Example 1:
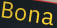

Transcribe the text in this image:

Bona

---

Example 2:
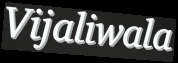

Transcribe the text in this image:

Vijaliwala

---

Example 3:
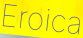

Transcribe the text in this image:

Eroica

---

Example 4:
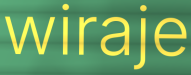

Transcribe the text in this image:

wiraje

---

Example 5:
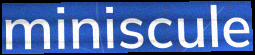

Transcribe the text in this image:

miniscule